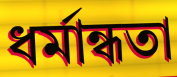
ধর্মান্ধতা